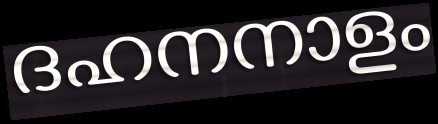
ദഹനനാളം